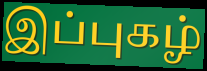
இப்புகழ்